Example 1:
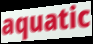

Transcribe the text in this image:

aquatic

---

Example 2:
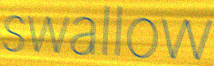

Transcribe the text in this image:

swallow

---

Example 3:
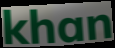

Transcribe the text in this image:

khan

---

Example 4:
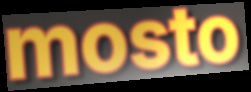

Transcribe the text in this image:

mosto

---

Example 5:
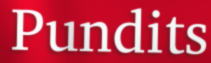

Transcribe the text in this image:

Pundits